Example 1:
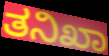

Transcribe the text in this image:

ತನಿಖಾ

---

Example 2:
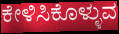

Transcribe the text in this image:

ಕೇಳಿಸಿಕೊಳ್ಳುವ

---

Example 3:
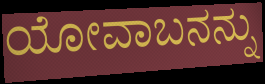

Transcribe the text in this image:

ಯೋವಾಬನನ್ನು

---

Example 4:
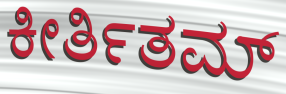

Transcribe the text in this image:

ಕೀರ್ತಿತಮ್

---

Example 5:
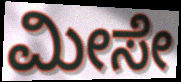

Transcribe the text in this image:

ಮೀಸೇ